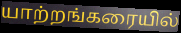
யாற்றங்கரையில்